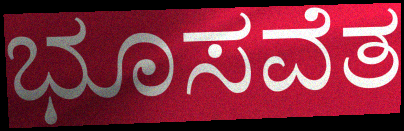
ಭೂಸವೆತ